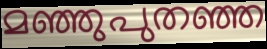
മഞ്ഞുപുതഞ്ഞ